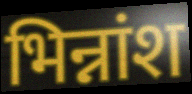
भिन्नांश